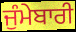
ਜੁੰਮੇਬਾਰੀ